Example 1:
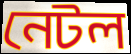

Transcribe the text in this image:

নেটল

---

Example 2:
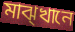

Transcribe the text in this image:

মাঝ্খানে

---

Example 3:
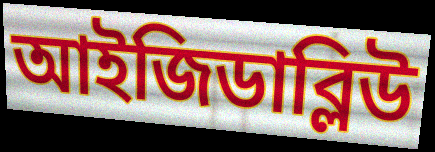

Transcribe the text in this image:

আইজিডাব্লিউ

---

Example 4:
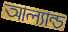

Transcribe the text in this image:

আল্যান্ড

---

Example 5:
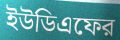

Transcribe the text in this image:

ইউডিএফের